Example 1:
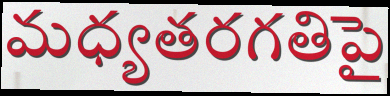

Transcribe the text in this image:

మధ్యతరగతిపై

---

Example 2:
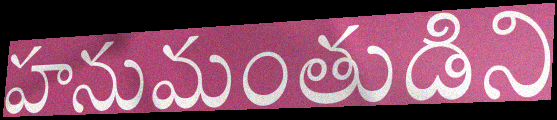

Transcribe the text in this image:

హనుమంతుడిని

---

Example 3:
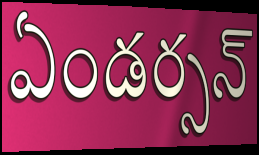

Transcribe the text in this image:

ఏండర్సన్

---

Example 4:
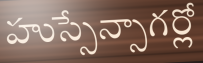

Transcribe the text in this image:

హుస్సేన్సాగర్లో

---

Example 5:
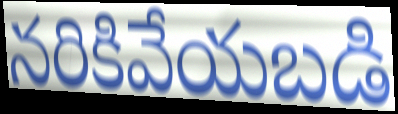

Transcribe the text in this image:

నరికివేయబడి